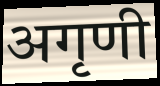
अगृणी